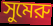
সুমেৰু